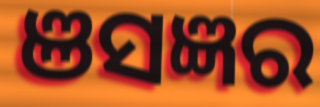
ଞସଜ୍ଞର